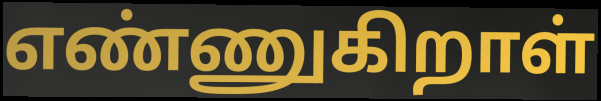
எண்ணுகிறாள்